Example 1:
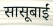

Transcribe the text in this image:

सासूबाईं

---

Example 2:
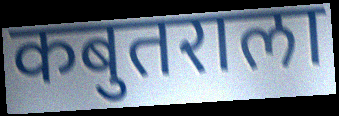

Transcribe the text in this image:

कबुतराला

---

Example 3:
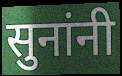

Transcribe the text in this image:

सुनांनी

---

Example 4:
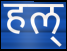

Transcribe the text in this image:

हल्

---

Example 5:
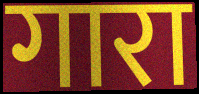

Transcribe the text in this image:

गारा